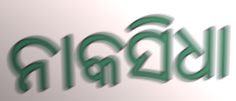
ନାକସିଧା